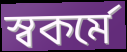
স্বকর্মে